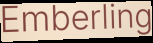
Emberling